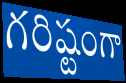
గరిష్టంగా